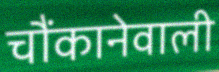
चौंकानेवाली